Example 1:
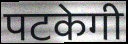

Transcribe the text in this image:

पटकेगी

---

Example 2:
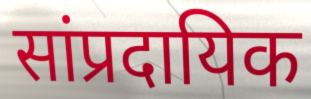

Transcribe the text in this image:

सांप्रदायिक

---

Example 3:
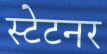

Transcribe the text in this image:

स्टेटनर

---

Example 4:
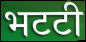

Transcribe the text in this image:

भटटी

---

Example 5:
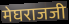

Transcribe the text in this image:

मेघराजजी